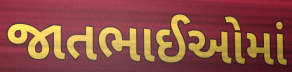
જાતભાઈઓમાં